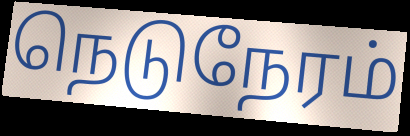
நெடுநேரம்